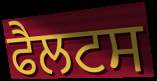
ਫੈਲਟਸ